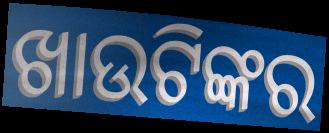
ଖାଉଟିଙ୍କର